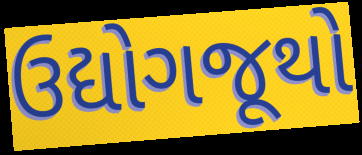
ઉદ્યોગજૂથો